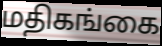
மதிகங்கை